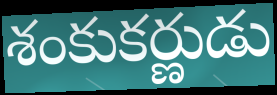
శంకుకర్ణుడు